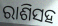
ରାଶିସହ